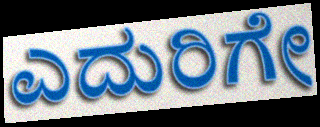
ಎದುರಿಗೇ